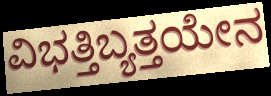
ವಿಭತ್ತಿಬ್ಯತ್ತಯೇನ